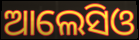
ଆଲେସିଓ